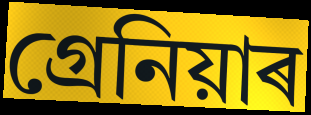
গ্ৰেনিয়াৰ